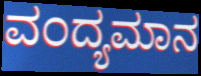
ವಂದ್ಯಮಾನ